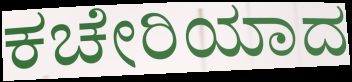
ಕಚೇರಿಯಾದ